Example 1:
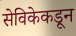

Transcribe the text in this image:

सेविकेकडून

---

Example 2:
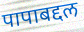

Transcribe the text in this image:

पापाबद्दल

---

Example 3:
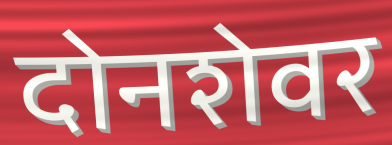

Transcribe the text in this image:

दोनशेवर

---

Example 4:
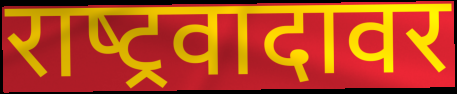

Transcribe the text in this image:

राष्ट्रवादावर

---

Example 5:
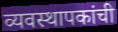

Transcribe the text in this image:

व्यवस्थापकांची